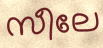
സീലേ